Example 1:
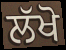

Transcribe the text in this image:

ਲੱਖੋ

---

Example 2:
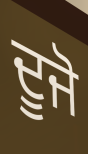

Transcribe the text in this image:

ਦੂਜੋ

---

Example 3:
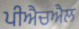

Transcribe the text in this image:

ਪੀਐਚਐਲ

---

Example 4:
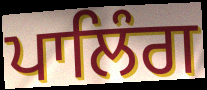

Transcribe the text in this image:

ਪਾਲਿੰਗ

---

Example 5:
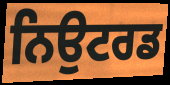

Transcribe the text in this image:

ਨਿਉਟਰਡ